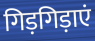
गिड़गिड़ाएं